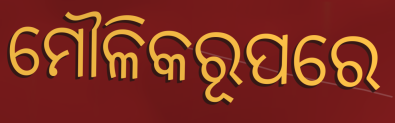
ମୌଳିକରୂପରେ